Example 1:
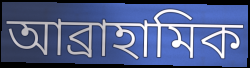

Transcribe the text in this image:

আব্রাহামিক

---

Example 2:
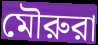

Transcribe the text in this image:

মৌরুরা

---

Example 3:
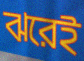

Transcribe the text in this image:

ঝরেই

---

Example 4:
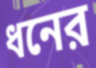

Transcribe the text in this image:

ধনের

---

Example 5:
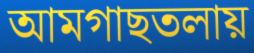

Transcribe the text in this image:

আমগাছতলায়